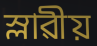
স্লাৱীয়